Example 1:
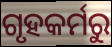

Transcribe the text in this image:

ଗୃହକର୍ମରୁ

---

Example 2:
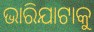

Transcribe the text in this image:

ଭାରିଯାଟାକୁ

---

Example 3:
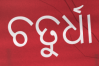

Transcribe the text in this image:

ଚତୁର୍ଧା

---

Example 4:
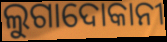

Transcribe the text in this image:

ଲୁଗାଦୋକାନୀ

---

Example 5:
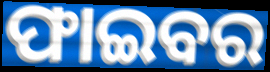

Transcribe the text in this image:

ଫାଇବର